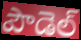
పౌడెల్